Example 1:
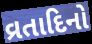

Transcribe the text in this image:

વ્રતાદિનો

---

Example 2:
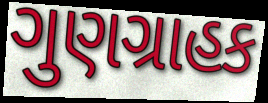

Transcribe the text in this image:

ગુણગ્રાહક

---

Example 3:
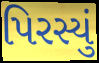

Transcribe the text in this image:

પિરસ્યું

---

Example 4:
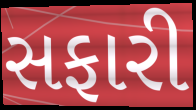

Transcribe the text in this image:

સફારી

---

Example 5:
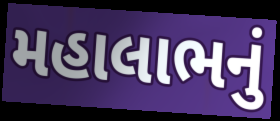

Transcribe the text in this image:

મહાલાભનું